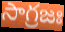
సాగ్రజః